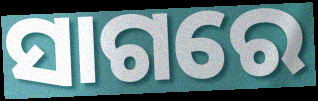
ସାଗରେ